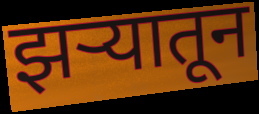
झऱ्यातून